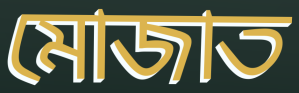
মোজাত